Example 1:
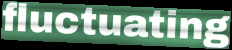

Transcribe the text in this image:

fluctuating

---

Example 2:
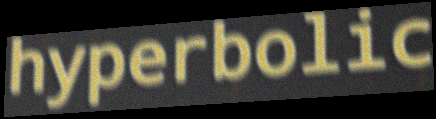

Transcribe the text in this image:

hyperbolic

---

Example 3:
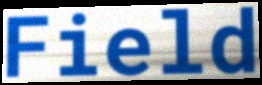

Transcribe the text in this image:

Field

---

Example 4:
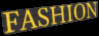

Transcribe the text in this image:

FASHION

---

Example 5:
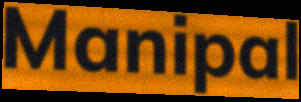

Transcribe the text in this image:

Manipal